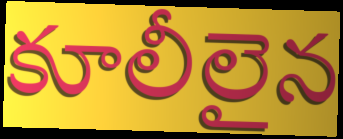
కూలీలైన